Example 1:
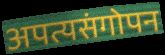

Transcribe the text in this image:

अपत्यसंगोपन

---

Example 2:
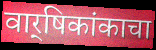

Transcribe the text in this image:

वार्षिकांकाचा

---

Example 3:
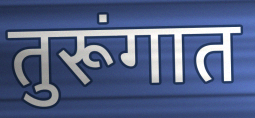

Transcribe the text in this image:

तुरूंगात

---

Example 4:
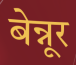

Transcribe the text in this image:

बेन्नूर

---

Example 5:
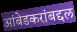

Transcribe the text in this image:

आंबेडकरांबद्दल